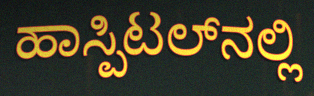
ಹಾಸ್ಪಿಟಲ್‌ನಲ್ಲಿ